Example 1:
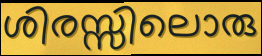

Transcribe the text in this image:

ശിരസ്സിലൊരു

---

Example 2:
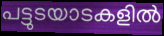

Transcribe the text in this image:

പട്ടുടയാടകളിൽ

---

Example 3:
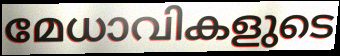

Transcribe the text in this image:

മേധാവികളുടെ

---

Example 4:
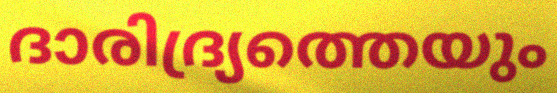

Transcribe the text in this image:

ദാരിദ്ര്യത്തെയും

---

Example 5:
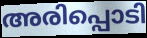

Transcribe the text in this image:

അരിപ്പൊടി